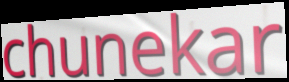
chunekar